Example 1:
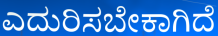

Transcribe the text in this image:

ಎದುರಿಸಬೇಕಾಗಿದೆ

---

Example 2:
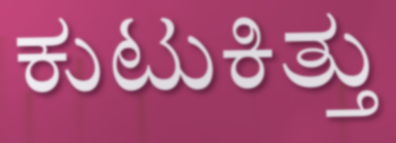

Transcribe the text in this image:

ಕುಟುಕಿತ್ತು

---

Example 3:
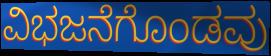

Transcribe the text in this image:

ವಿಭಜನೆಗೊಂಡವು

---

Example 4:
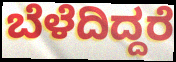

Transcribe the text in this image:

ಬೆಳೆದಿದ್ದರೆ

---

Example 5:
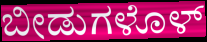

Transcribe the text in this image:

ಬೀಡುಗಳೊಳ್